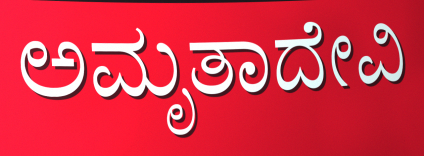
ಅಮೃತಾದೇವಿ